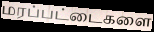
மரப்பட்டைகளை